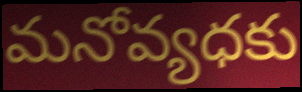
మనోవ్యధకు